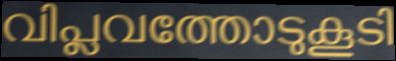
വിപ്ലവത്തോടുകൂടി